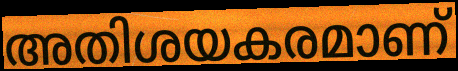
അതിശയകരമാണ്